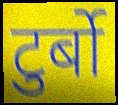
टुर्बो